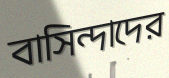
বাসিন্দাদের